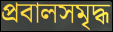
প্রবালসমৃদ্ধ